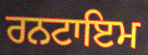
ਰਨਟਾਇਮ